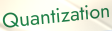
Quantization